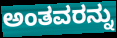
ಅಂತವರನ್ನು